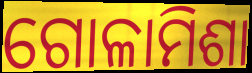
ଗୋଳାମିଶା